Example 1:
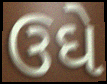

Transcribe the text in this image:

ઉઘે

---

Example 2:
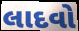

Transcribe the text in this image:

લાદવો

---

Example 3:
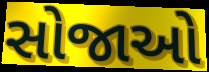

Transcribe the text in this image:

સોજાઓ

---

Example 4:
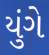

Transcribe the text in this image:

યુંગે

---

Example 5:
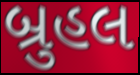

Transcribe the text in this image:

બ્રુહલ